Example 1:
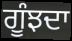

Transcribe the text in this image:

ਗੂੰਝਦਾ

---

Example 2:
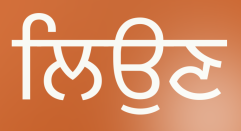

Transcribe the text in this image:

ਲਿਉਣ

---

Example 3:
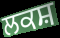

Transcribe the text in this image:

ਲਕਸ਼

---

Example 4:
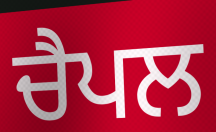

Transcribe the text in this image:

ਚੈਪਲ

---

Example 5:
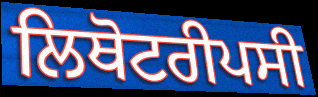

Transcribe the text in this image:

ਲਿਥੋਟਰੀਪਸੀ